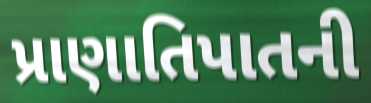
પ્રાણાતિપાતની